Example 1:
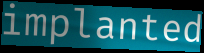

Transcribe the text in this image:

implanted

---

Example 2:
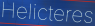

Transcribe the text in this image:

Helicteres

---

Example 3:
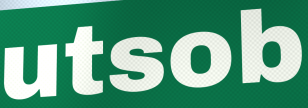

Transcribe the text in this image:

utsob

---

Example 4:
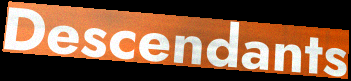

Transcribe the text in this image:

Descendants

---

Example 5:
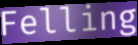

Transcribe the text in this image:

Felling